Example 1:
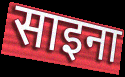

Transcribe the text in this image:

साइना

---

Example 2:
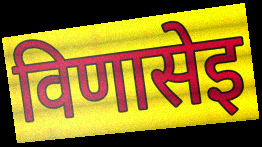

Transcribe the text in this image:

विणासेइ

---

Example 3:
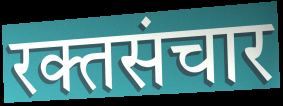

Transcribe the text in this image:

रक्तसंचार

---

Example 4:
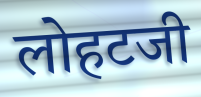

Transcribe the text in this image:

लोहटजी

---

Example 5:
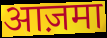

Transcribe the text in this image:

आज़मा